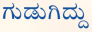
ಗುಡುಗಿದ್ದು